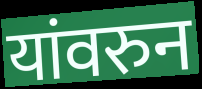
यांवरुन